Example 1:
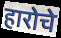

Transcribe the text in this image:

हारोचे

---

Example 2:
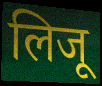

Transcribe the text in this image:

लिजू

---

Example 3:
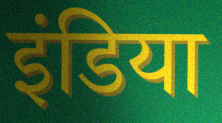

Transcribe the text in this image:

इंडिया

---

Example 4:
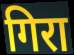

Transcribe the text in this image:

गिरा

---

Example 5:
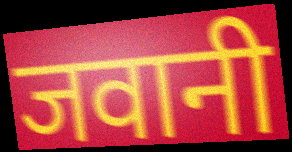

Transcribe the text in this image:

जवानी